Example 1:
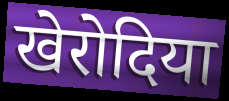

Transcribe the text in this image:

खेरोदिया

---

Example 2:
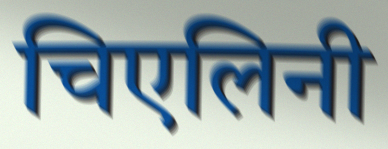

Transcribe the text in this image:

चिएलिनी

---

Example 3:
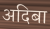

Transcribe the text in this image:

अदिबा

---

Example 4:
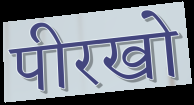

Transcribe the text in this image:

पीरखो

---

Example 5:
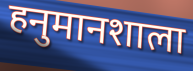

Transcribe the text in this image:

हनुमानशाला